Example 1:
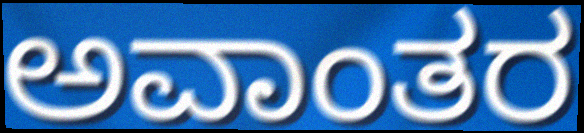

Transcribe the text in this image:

ಅವಾಂತರ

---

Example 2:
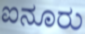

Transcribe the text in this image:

ಐನೂರು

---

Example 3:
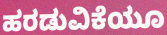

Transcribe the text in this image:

ಹರಡುವಿಕೆಯೂ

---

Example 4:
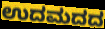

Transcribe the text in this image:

ಉದಮದದ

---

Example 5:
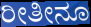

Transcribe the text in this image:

ರೀತೀನೂ